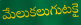
మేలుకలుగుటకై